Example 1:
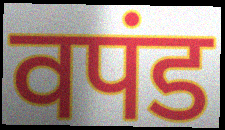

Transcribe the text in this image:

वपंड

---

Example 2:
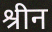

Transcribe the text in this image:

श्रीन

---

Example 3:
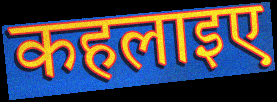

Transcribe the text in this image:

कहलाइए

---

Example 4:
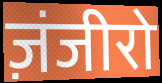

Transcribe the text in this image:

ज़ंजीरो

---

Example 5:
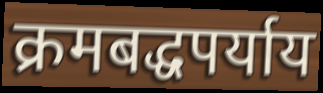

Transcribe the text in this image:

क्रमबद्धपर्याय